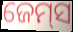
ଜେମ୍‍ସ